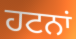
ਹਟਨਾਂ